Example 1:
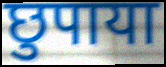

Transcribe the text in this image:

छुपाया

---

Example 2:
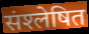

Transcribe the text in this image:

संश्लेषित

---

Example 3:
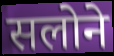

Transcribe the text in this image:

सलोने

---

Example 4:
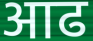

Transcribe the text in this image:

आढ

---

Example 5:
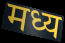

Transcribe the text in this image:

मध्‍य